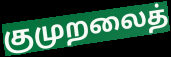
குமுறலைத்